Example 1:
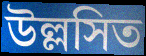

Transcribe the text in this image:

উল্লসিত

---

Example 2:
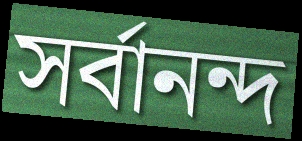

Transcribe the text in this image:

সৰ্বানন্দ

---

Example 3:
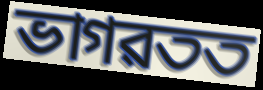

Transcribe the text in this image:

ভাগৱতত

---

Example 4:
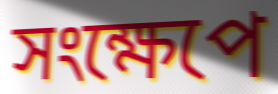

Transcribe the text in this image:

সংক্ষেপে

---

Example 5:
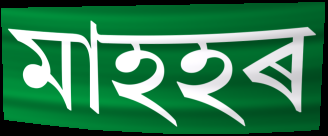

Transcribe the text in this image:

মাহহৰ